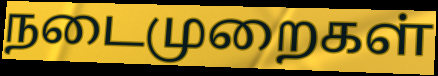
நடைமுறைகள்